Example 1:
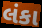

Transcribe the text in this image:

લંકા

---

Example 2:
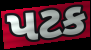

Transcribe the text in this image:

પટક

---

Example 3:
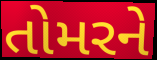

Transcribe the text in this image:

તોમરને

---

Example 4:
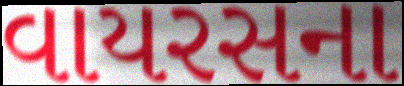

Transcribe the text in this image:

વાયરસના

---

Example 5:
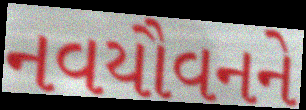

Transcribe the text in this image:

નવયૌવનને